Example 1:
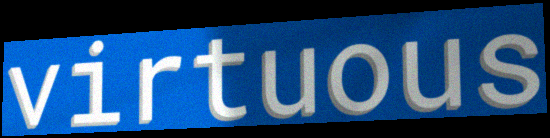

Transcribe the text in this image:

virtuous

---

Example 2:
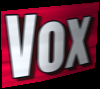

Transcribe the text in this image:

Vox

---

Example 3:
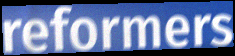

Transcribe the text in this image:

reformers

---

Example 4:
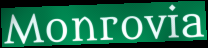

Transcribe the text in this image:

Monrovia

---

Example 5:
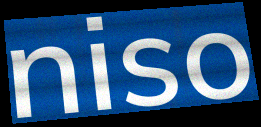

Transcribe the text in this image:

niso